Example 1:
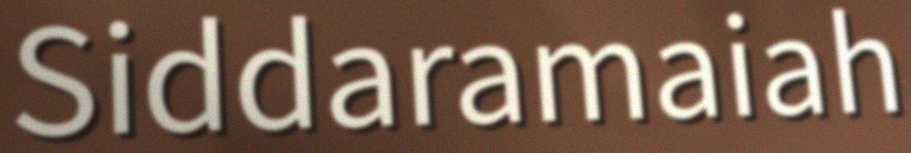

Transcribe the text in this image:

Siddaramaiah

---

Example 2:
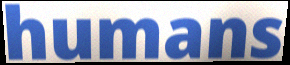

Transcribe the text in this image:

humans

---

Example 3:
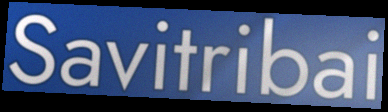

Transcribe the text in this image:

Savitribai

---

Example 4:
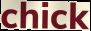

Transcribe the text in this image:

chick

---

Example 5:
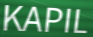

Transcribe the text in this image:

KAPIL